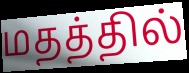
மதத்தில்